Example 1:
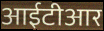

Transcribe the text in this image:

आईटीआर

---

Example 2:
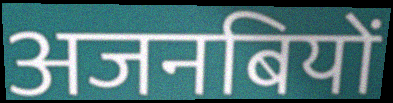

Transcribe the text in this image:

अजनबियों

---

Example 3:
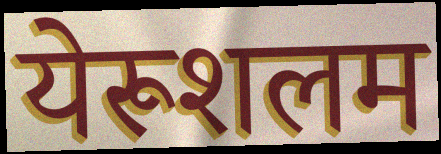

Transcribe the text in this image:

येरूशलम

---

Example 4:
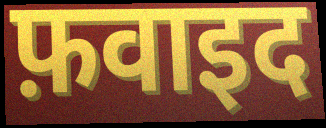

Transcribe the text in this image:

फ़वाइद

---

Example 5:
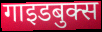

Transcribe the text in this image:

गाइडबुक्स